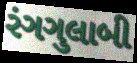
રંગગુલાબી